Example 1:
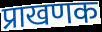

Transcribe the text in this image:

प्राखणक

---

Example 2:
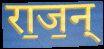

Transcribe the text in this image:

रा॒ज॒न्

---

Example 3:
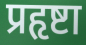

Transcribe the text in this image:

प्रहृष्टा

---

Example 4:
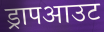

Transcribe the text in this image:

ड्रापआउट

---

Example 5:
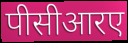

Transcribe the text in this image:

पीसीआरए